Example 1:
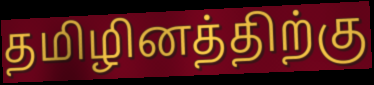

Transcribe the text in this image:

தமிழினத்திற்கு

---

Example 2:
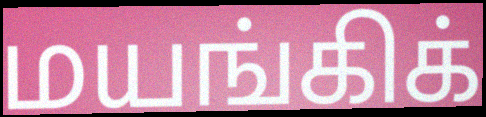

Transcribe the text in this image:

மயங்கிக்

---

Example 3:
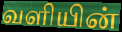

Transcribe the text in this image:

வளியின்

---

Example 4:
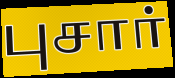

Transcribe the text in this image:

புசார்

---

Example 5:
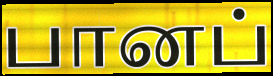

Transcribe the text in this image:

பானப்